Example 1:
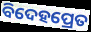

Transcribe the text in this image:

ବିଦେହପ୍ରେତ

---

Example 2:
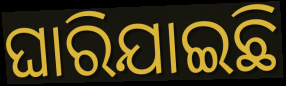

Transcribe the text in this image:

ଘାରିଯାଇଛି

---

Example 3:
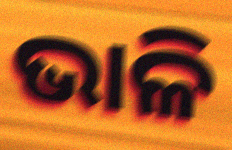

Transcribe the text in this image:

ଭାଳି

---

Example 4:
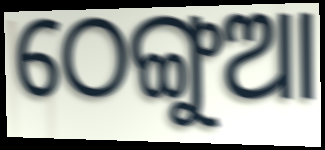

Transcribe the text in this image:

ଠେଙ୍ଗୁଆ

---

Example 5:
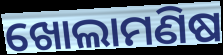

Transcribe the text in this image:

ଖୋଲାମଣିଷ